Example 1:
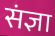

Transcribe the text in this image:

संज्ञा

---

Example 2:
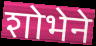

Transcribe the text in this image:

शोभेने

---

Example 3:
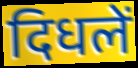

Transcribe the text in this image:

दिधलें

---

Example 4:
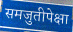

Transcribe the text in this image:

समजुतीपेक्षा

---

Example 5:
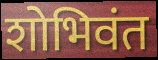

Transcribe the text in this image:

शोभिवंत